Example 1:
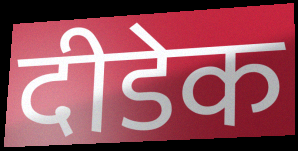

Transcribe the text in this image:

दीडेक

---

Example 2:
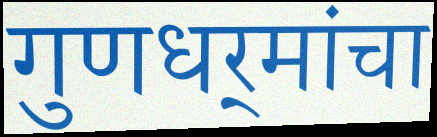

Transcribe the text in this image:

गुणधर्मांचा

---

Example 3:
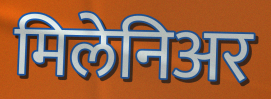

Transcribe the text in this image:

मिलेनिअर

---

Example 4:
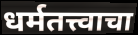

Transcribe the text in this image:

धर्मतत्त्वाचा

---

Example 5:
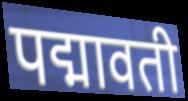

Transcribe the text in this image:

पद्मावती